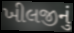
ખીલજીનું